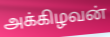
அக்கிழவன்